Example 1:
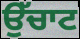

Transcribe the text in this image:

ਉੱਚਾਟ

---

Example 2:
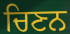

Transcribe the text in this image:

ਚਿਣਨ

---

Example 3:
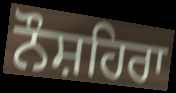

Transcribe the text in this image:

ਨੌਸ਼ਹਿਰਾ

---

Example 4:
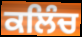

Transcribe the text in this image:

ਕਲਿੰਚ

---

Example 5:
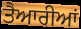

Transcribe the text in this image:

ਤੈਆਰੀਆਂ